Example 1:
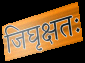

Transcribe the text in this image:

जिघृक्षतः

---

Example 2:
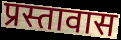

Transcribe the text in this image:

प्रस्तावास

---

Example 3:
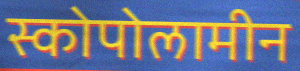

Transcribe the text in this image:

स्कोपोलामीन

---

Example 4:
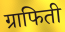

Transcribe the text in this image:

ग्राफिती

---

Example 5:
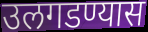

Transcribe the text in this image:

उलगडण्यास